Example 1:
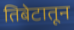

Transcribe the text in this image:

तिबेटातून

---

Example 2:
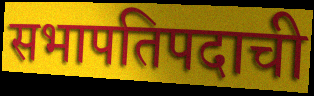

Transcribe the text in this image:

सभापतिपदाची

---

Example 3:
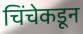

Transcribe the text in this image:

चिंचेकडून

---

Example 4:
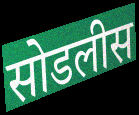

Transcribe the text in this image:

सोडलीस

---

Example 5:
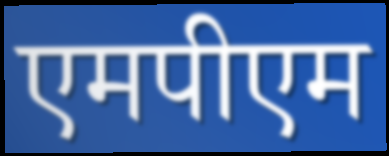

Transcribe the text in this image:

एमपीएम